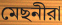
মেছনীরা